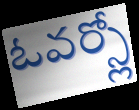
ఓవర్స్లో